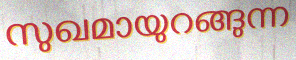
സുഖമായുറങ്ങുന്ന